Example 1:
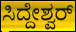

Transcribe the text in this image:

ಸಿದ್ದೇಶ್ವರ್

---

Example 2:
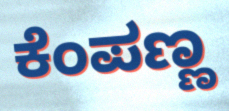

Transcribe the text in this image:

ಕೆಂಪಣ್ಣ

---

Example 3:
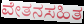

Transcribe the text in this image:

ವೇತನಸಹಿತ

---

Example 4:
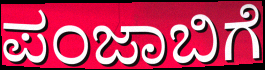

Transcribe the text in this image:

ಪಂಜಾಬಿಗೆ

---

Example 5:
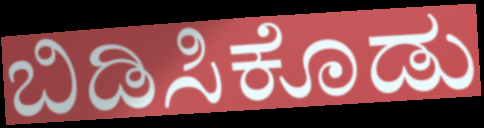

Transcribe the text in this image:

ಬಿಡಿಸಿಕೊಡು